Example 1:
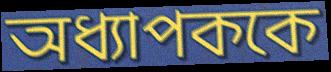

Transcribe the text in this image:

অধ্যাপককে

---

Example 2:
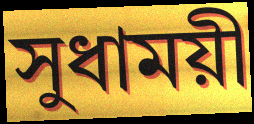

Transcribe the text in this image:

সুধাময়ী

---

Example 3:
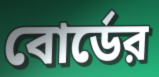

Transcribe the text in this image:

বোর্ডের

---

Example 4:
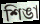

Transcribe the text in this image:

শিঙা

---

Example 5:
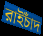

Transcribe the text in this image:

রাইচাঁদ